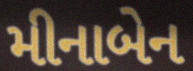
મીનાબેન